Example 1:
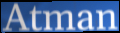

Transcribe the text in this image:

Atman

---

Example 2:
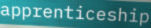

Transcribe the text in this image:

apprenticeship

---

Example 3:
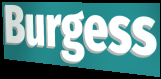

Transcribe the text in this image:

Burgess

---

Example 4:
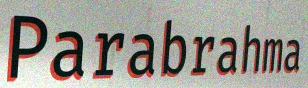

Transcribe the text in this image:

Parabrahma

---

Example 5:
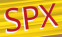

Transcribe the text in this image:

SPX